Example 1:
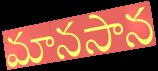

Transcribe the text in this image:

మానసాన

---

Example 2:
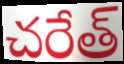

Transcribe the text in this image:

చరేత్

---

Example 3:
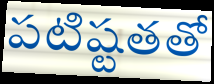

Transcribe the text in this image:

పటిష్టతతో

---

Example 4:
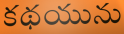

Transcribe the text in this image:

కథయును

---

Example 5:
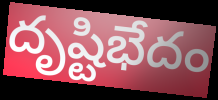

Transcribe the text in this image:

దృష్టిభేదం